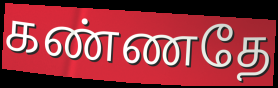
கண்ணதே